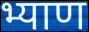
भ्याण